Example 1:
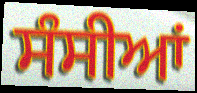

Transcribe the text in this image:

ਸੰਸੀਆਂ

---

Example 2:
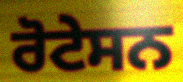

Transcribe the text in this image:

ਰੋਟੇਸਨ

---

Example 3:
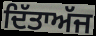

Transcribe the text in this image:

ਦਿੱਤਾਅੱਜ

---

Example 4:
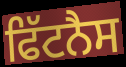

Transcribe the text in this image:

ਫਿੱਟਨੈਸ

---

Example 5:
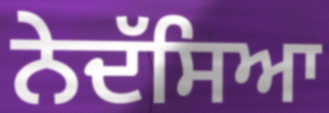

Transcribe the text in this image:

ਨੇਦੱਸਿਆ